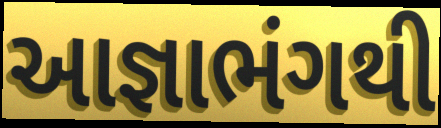
આજ્ઞાભંગથી